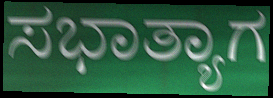
ಸಭಾತ್ಯಾಗ